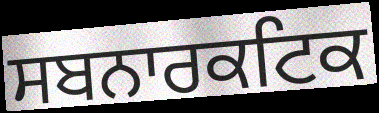
ਸਬਨਾਰਕਟਿਕ